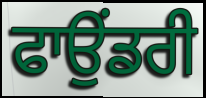
ਫਾਉਂਡਰੀ